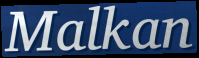
Malkan